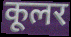
कूलर